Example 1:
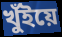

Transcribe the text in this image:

খুঁইয়ে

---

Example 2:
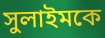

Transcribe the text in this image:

সুলাইমকে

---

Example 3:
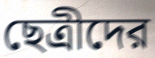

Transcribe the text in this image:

ছেত্রীদের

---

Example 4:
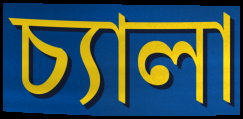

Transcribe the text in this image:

চ্যালা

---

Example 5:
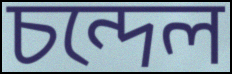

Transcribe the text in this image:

চন্দেল